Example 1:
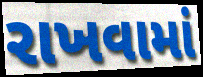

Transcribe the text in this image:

રાખવામાં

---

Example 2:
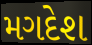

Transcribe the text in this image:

મગદેશ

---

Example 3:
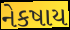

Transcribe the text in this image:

નેકષાય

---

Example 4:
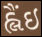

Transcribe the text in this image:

હ્લૈંઇ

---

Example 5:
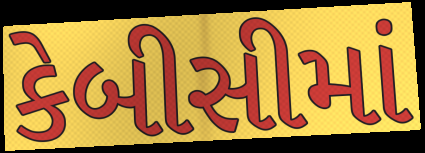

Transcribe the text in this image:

કેબીસીમાં